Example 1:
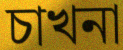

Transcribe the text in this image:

চাখনা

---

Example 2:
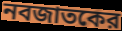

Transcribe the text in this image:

নবজাতকের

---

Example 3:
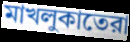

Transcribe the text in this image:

মাখলুকাতেরা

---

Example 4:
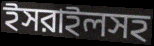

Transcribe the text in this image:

ইসরাইলসহ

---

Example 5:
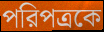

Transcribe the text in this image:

পরিপত্রকে